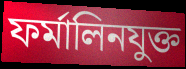
ফর্মালিনযুক্ত